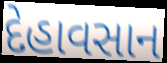
દેહાવસાન